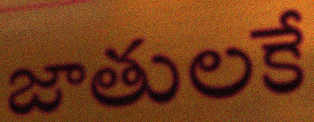
జాతులకే